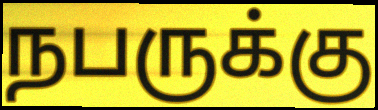
நபருக்கு